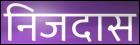
निजदास